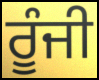
ਰੂੰਜੀ